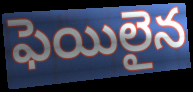
ఫెయిలైన